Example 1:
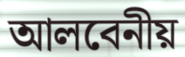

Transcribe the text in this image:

আলবেনীয়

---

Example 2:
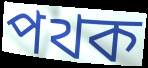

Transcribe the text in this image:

পথক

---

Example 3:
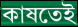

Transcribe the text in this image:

কাষতেই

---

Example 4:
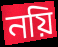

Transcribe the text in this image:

নয়ি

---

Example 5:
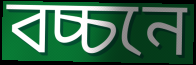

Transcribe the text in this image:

বচ্চনে